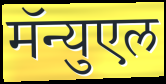
मॅन्युएल